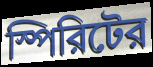
স্পিরিটের